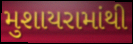
મુશાયરામાંથી